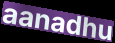
aanadhu